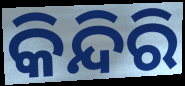
କିନ୍ଦିରି